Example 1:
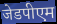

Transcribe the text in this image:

जेडपीएम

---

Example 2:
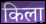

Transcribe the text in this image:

किला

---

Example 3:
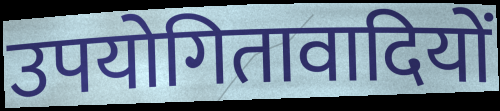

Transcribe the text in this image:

उपयोगितावादियों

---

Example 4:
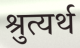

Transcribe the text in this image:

श्रुत्यर्थ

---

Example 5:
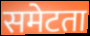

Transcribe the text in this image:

समेटता